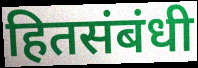
हितसंबंधी